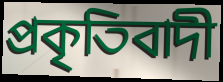
প্ৰকৃতিবাদী